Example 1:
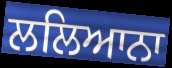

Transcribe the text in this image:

ਲਲਿਆਨਾ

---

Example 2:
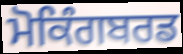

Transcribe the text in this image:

ਮੋਕਿੰਗਬਰਡ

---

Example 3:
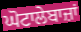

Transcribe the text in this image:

ਘੋਟਾਲੇਬਾਜ਼ਾਂ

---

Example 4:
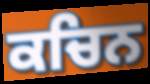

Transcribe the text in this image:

ਕਚਿਨ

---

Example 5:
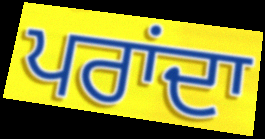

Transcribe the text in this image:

ਪਰਾਂਦਾ